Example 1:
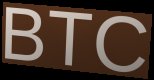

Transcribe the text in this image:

BTC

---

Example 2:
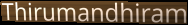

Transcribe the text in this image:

Thirumandhiram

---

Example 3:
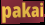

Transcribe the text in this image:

pakai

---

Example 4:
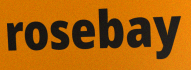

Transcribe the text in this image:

rosebay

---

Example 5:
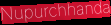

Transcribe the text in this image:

Nupurchhanda